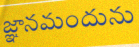
జ్ఞానమందును